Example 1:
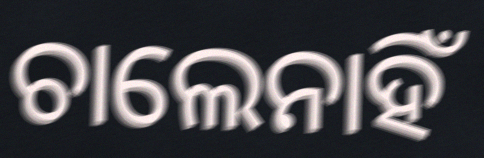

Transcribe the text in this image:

ଚାଲେନାହିଁ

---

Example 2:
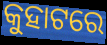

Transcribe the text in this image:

କୁହାଟରେ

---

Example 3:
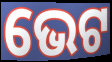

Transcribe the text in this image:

ଭେଟ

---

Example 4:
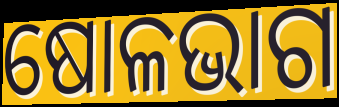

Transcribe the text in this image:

ଷୋଳଭାଗ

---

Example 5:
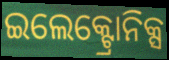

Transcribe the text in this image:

ଇଲେକ୍ଟ୍ରୋନିକ୍ସ